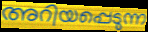
അറിയപ്പെടുന്ന